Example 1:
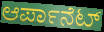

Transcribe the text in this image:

ಆರ್ಪಾನೆಟ್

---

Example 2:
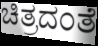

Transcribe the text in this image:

ಚಿತ್ರದಂತೆ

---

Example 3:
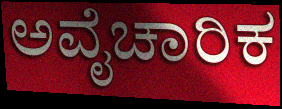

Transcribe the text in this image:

ಅವೈಚಾರಿಕ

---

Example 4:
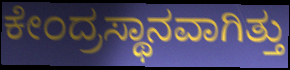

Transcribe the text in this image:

ಕೇಂದ್ರಸ್ಥಾನವಾಗಿತ್ತು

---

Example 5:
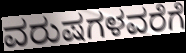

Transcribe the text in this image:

ವರುಷಗಳವರೆಗೆ